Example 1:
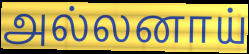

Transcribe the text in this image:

அல்லனாய்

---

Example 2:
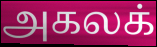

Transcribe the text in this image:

அகலக்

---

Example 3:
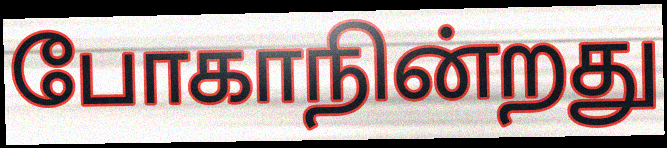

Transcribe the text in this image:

போகாநின்றது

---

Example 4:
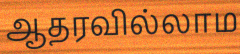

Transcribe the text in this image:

ஆதரவில்லாம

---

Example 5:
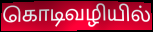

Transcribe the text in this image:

கொடிவழியில்